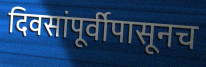
दिवसांपूर्वीपासूनच